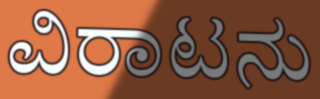
ವಿರಾಟನು